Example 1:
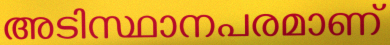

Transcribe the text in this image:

അടിസ്ഥാനപരമാണ്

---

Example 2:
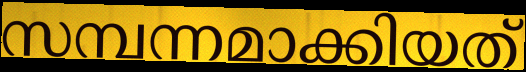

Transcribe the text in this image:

സമ്പന്നമാക്കിയത്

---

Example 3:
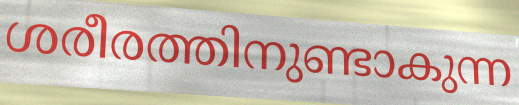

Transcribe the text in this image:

ശരീരത്തിനുണ്ടാകുന്ന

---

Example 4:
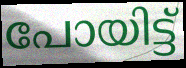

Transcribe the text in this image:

പോയിട്ട്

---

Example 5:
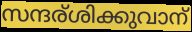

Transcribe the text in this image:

സന്ദര്ശിക്കുവാന്